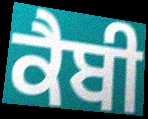
ਕੈਬੀ